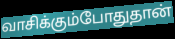
வாசிக்கும்போதுதான்